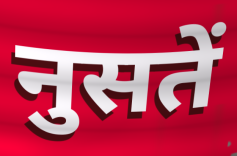
नुसतें